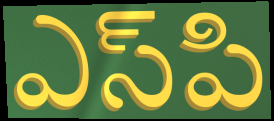
ఎస్‌పి